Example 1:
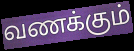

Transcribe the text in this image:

வணக்கும்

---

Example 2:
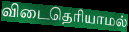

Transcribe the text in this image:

விடைதெரியாமல்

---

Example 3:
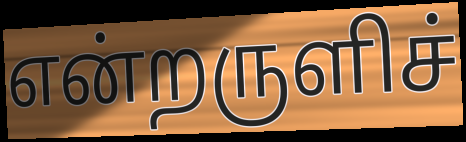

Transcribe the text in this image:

என்றருளிச்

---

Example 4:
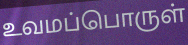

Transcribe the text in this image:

உவமப்பொருள்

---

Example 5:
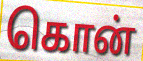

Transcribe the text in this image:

கொன்